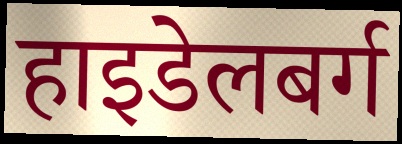
हाइडेलबर्ग